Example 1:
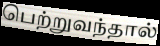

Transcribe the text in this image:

பெற்றுவந்தால்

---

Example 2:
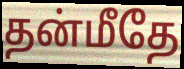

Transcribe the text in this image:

தன்மீதே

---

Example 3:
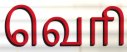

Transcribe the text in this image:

வெரி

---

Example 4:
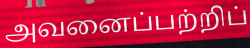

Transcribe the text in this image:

அவனைப்பற்றிப்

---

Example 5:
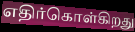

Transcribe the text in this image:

எதிர்கொள்கிறது